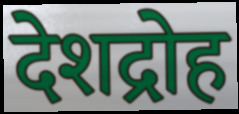
देशद्रोह